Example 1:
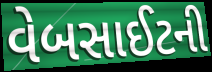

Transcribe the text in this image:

વેબસાઈટની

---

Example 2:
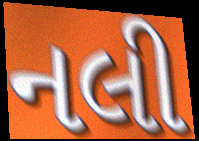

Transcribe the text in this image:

નલી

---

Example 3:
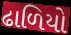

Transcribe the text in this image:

ઢાળિયો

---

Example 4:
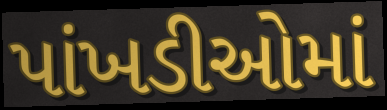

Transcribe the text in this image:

પાંખડીઓમાં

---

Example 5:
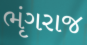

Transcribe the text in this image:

ભૃંગરાજ